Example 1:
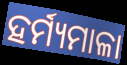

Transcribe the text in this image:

ହର୍ମ୍ୟମାଳା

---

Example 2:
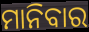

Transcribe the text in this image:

ମାନିବାର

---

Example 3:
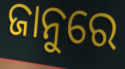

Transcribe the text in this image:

ଜାନୁରେ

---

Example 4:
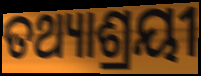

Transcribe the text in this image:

ତଥ୍ୟାଶ୍ରୟୀ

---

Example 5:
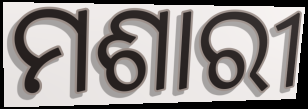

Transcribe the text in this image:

ମଶାରୀ